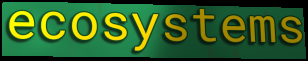
ecosystems